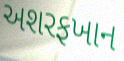
અશરફખાન